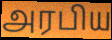
அரபிய